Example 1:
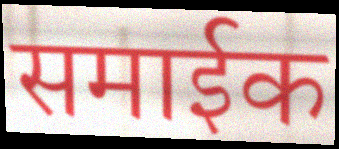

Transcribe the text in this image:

समाईक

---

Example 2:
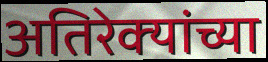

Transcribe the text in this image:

अतिरेक्‍यांच्या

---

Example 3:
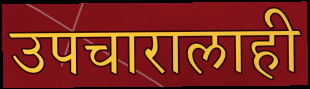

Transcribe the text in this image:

उपचारालाही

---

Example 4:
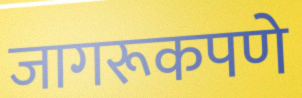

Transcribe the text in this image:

जागरूकपणे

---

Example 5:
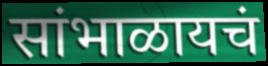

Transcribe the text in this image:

सांभाळायचं